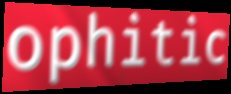
ophitic